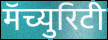
मॅच्युरिटी